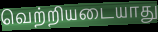
வெற்றியடையாது